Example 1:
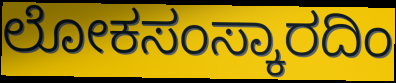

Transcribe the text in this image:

ಲೋಕಸಂಸ್ಕಾರದಿಂ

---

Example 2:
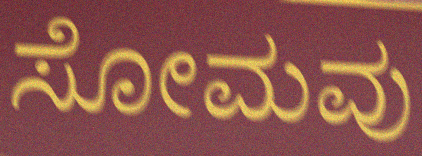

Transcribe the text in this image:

ಸೋಮವು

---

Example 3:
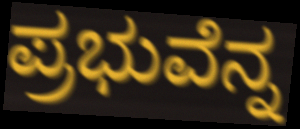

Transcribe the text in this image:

ಪ್ರಭುವೆನ್ನ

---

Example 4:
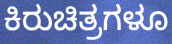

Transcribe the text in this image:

ಕಿರುಚಿತ್ರಗಳೂ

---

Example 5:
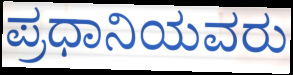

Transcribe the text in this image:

ಪ್ರಧಾನಿಯವರು